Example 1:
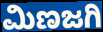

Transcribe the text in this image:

ಮಿಣಜಗಿ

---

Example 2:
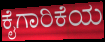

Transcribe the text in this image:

ಕೈಗಾರಿಕೆಯ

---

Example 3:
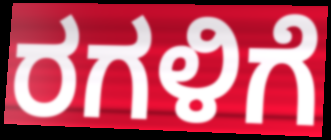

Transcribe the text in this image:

ರಗಳಿಗೆ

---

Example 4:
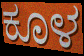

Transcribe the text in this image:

ಕೂಳ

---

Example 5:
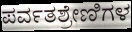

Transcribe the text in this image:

ಪರ್ವತಶ್ರೇಣಿಗಳ